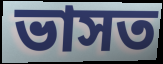
ভাসত